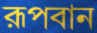
রূপবান